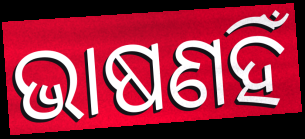
ଭାଷଣହିଁ